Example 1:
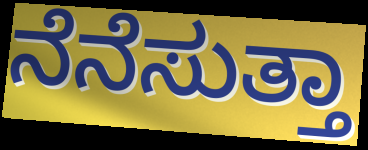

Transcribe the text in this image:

ನೆನೆಸುತ್ತಾ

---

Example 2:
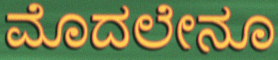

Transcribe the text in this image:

ಮೊದಲೇನೂ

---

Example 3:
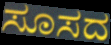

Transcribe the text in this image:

ಸೂಸದ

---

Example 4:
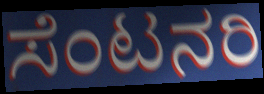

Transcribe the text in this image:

ಸೆಂಟನರಿ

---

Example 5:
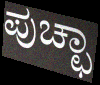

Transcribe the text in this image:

ಪುಚ್ಛಾ